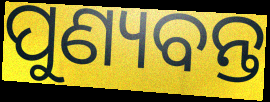
ପୁଣ୍ୟବନ୍ତ